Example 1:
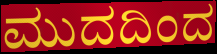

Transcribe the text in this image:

ಮುದದಿಂದ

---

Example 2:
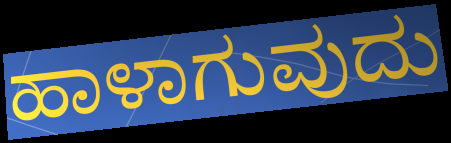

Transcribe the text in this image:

ಹಾಳಾಗುವುದು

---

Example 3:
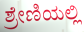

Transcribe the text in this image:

ಶ್ರೇಣಿಯಲ್ಲಿ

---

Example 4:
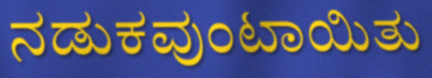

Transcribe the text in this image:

ನಡುಕವುಂಟಾಯಿತು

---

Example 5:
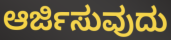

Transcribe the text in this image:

ಆರ್ಜಿಸುವುದು